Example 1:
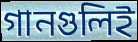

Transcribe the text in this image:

গানগুলিই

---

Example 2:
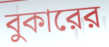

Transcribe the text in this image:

বুকারের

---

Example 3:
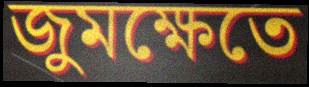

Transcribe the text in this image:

জুমক্ষেতে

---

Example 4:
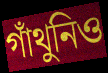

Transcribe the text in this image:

গাঁথুনিও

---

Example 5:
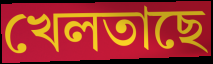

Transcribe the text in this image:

খেলতাছে